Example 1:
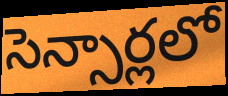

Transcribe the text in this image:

సెన్సార్లలో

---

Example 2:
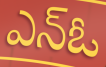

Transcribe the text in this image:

ఎన్ఓ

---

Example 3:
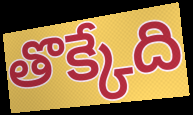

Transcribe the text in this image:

తొక్కేది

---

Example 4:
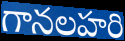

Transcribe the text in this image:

గానలహరి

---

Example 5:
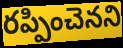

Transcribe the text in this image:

రప్పించెనని